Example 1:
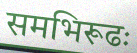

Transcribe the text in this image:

समभिरूढः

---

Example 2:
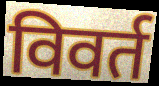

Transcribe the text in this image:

विवर्त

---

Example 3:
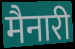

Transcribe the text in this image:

मैनारी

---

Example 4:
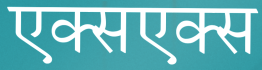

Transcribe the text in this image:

एक्सएक्स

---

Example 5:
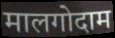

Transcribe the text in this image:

मालगोदाम